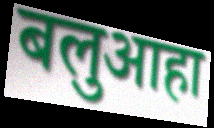
बलुआहा